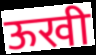
ऊखी